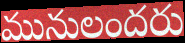
మునులందరు